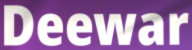
Deewar